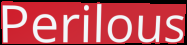
Perilous